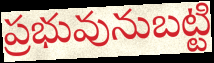
ప్రభువునుబట్టి